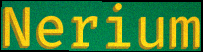
Nerium